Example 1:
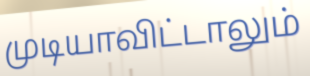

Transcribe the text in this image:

முடியாவிட்டாலும்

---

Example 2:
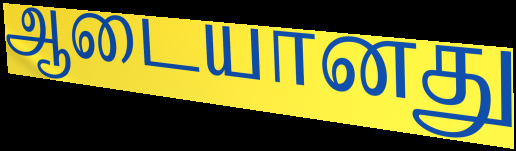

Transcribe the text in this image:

ஆடையானது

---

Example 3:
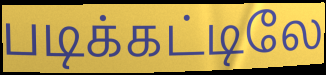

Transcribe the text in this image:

படிக்கட்டிலே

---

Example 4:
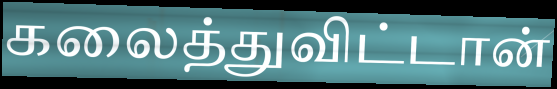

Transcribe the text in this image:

கலைத்துவிட்டான்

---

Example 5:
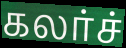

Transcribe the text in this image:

கலர்ச்